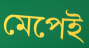
মেপেই